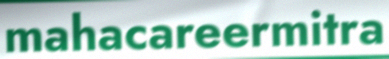
mahacareermitra